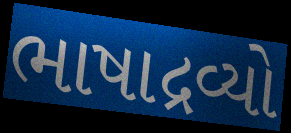
ભાષાદ્રવ્યો